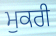
ਮੁਕਰੀ